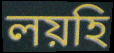
লয়হি